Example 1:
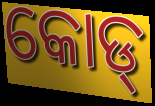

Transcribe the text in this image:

କୋଡ୍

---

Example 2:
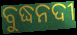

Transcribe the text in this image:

ବୁଦ୍ଧନଦୀ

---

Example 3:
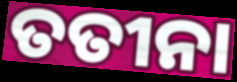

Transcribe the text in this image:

ତତୀନା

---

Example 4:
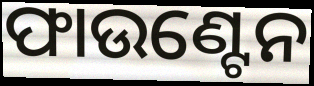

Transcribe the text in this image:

ଫାଉଣ୍ଟେନ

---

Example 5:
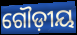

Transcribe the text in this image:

ଗୌଡ଼ୀୟ